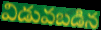
విడువబడిన